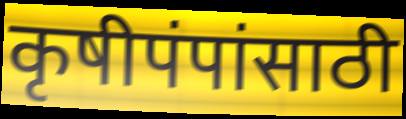
कृषीपंपांसाठी